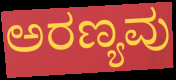
ಅರಣ್ಯವು